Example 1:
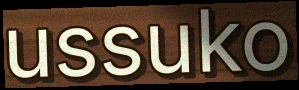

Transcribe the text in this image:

ussuko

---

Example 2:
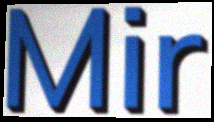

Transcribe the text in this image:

Mir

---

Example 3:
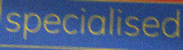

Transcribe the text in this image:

specialised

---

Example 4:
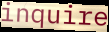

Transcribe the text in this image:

inquire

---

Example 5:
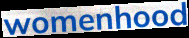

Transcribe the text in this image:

womenhood